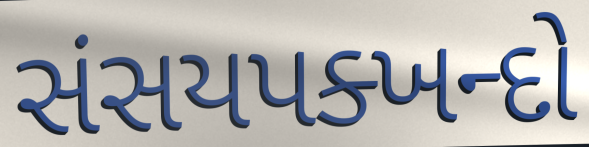
સંસયપક્ખન્દો